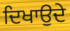
ਦਿਖਾਉਦੇ